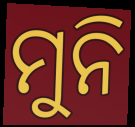
ମୁନି